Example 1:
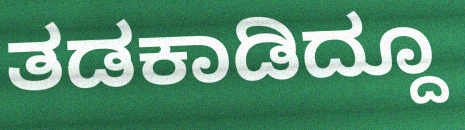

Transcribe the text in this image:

ತಡಕಾಡಿದ್ದೂ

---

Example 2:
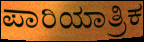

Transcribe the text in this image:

ಪಾರಿಯಾತ್ರಿಕ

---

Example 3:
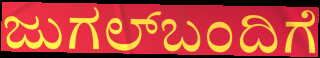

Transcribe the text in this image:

ಜುಗಲ್‌ಬಂದಿಗೆ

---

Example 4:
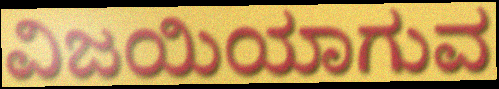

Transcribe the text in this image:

ವಿಜಯಿಯಾಗುವ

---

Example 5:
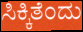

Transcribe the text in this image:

ಸಿಕ್ಕಿತೆಂದು